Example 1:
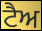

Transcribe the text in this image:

ਟੈਅ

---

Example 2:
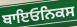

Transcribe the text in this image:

ਬਾਇਓਨਿਕਸ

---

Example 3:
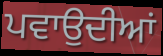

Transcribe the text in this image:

ਪਵਾਉਦੀਆਂ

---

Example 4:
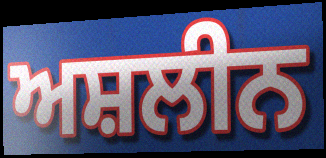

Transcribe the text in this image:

ਅਸ਼ਲੀਨ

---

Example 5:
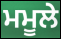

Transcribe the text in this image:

ਮਮੂਲੇ